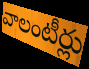
వాలంటీర్లు